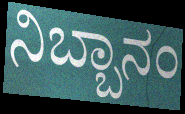
ನಿಬ್ಬಾನಂ